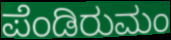
ಪೆಂಡಿರುಮಂ